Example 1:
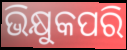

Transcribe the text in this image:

ଭିକ୍ଷୁକପରି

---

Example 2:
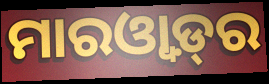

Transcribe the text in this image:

ମାରଓ୍ୱାଡ଼୍‌ର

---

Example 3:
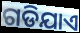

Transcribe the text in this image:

ଗଡିଯାଏ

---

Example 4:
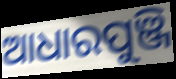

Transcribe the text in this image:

ଆଧାରପୁଞ୍ଜି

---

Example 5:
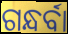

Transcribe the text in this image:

ଗନ୍ଧର୍ବା